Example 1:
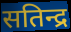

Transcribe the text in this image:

सतिन्द्र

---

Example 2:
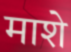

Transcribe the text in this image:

माशे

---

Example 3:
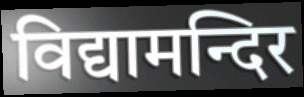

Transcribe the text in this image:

विद्यामन्दिर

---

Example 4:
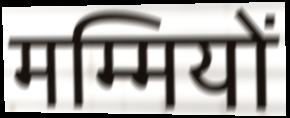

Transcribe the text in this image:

मम्मियों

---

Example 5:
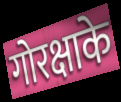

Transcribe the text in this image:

गोरक्षाके